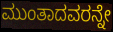
ಮುಂತಾದವರನ್ನೇ